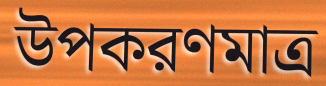
উপকরণমাত্র